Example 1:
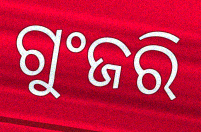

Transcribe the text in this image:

ଗୁଂଜରି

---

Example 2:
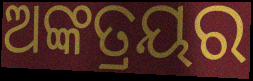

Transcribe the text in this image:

ଅଙ୍କତ୍ରୟର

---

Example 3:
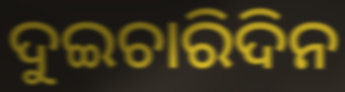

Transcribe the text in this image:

ଦୁଇଚାରିଦିନ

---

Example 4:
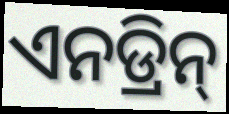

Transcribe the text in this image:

ଏନଡ୍ରିନ୍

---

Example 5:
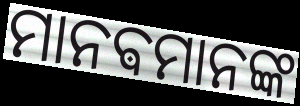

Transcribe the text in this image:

ମାନଵମାନଙ୍କ